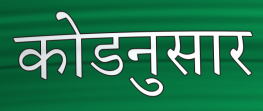
कोडनुसार